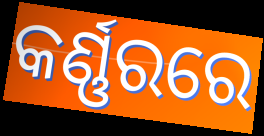
କର୍ଣ୍ଣରରେ